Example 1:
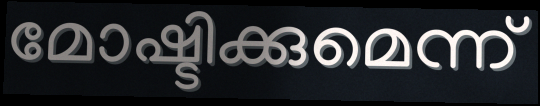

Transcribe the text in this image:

മോഷ്ടിക്കുമെന്ന്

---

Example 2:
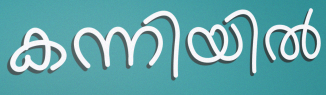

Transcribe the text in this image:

കന്നിയിൽ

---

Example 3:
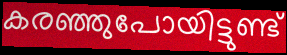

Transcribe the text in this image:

കരഞ്ഞുപോയിട്ടുണ്ട്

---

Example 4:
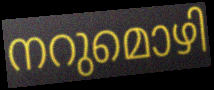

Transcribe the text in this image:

നറുമൊഴി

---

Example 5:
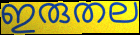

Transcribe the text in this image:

ഇരുതല